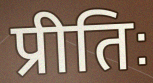
प्रीतिः